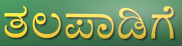
ತಲಪಾಡಿಗೆ